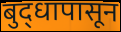
बुद्धापासून